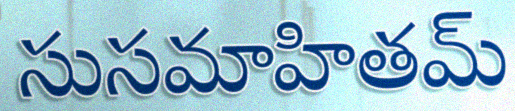
సుసమాహితమ్